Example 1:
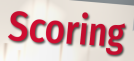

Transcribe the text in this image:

Scoring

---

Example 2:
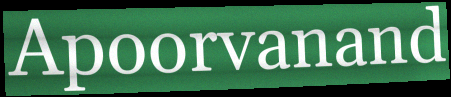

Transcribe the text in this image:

Apoorvanand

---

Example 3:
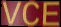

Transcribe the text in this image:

VCE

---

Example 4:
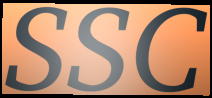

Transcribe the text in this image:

SSC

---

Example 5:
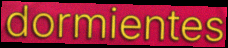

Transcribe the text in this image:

dormientes